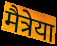
मैत्रेया